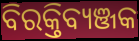
ବିରକ୍ତିବ୍ୟଞ୍ଜକ